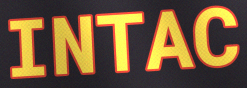
INTAC